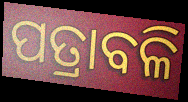
ପତ୍ରାବଳି